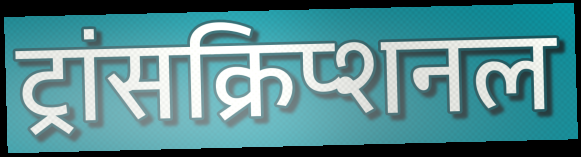
ट्रांसक्रिप्शनल